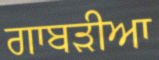
ਗਾਬੜੀਆ